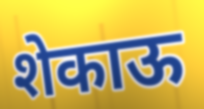
शेकाऊ